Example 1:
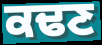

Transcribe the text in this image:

ਕਢਣ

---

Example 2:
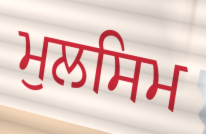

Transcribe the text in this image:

ਮੁਲਸਿਮ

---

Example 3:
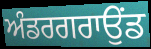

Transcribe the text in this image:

ਅੰਡਰਗਰਾਉਂਡ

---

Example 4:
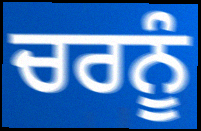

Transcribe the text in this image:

ਚਰਨੂੰ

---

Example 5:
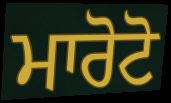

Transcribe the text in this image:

ਮਾਰੋਟੋ